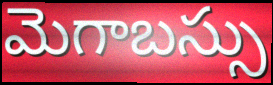
మెగాబస్సు